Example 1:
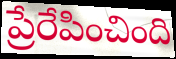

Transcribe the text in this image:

ప్రేరేపించింది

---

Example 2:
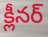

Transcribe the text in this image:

క్లీనర్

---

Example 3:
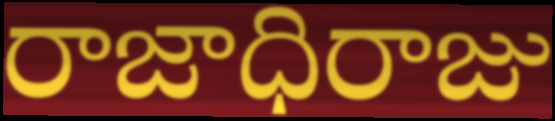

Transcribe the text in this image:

రాజాధిరాజు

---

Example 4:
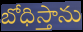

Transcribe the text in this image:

బోధిస్తాను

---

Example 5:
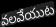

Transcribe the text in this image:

వలవేయుట